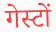
गेस्टों